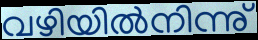
വഴിയിൽനിന്നു്